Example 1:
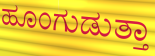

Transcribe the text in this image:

ಹೂಂಗುಡುತ್ತಾ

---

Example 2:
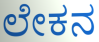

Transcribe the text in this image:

ಲೇಕನ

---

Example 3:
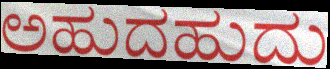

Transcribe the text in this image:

ಅಹುದಹುದು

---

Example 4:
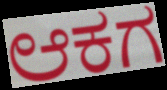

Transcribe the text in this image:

ಆಕಗ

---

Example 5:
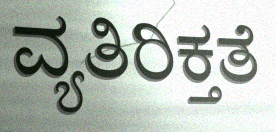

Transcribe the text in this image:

ವ್ಯತಿರಿಕ್ತತೆ